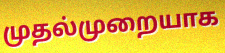
முதல்முறையாக